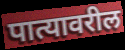
पात्यावरील